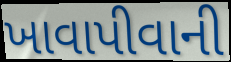
ખાવાપીવાની